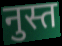
नुस्त